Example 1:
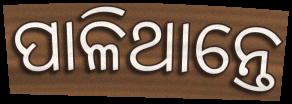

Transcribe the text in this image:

ପାଳିଥାନ୍ତେ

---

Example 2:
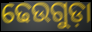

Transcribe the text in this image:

ଢେଉଗୁଡ଼ା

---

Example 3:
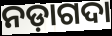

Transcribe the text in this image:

ନଡ଼ାଗଦା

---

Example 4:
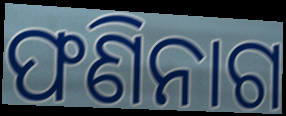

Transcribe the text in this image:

ଫଣିନାଗ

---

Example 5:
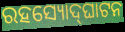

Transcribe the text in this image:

ରହସ୍ୟୋଦ୍‍ଘାଟନ